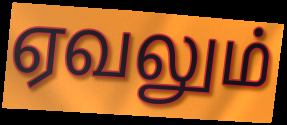
ஏவலும்